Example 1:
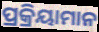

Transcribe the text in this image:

ପ୍ରକ୍ରିୟାମାନ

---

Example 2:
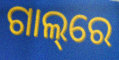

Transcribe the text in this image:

ଗାଲ୍‌ରେ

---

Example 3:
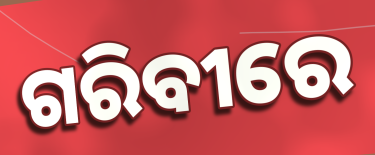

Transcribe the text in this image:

ଗରିବୀରେ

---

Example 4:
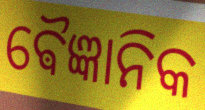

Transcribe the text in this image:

ଵୈଜ୍ଞାନିକ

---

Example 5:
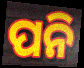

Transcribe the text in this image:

ପନି